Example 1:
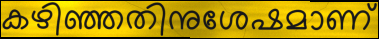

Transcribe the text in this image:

കഴിഞ്ഞതിനുശേഷമാണ്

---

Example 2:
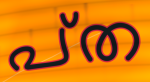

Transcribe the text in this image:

പ്‌ത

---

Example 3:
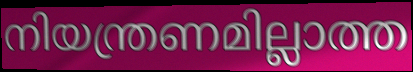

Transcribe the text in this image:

നിയന്ത്രണമില്ലാത്ത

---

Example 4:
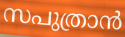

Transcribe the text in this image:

സപുത്രാൻ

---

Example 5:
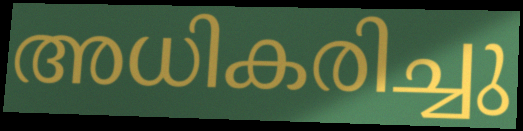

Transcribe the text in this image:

അധികരിച്ചു